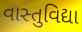
વાસ્તુવિદ્યા